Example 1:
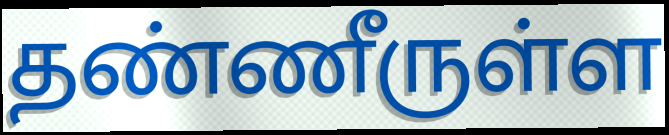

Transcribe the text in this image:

தண்ணீருள்ள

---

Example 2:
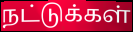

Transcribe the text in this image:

நட்டுக்கள்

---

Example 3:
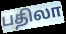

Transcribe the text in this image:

பதிலா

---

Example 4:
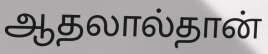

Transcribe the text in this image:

ஆதலால்தான்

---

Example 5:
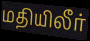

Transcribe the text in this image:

மதியிலீர்